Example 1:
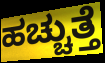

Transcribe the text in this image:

ಹಚ್ಚುತ್ತೆ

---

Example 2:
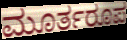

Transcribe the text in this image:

ಮೂರ್ತರೂಪ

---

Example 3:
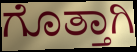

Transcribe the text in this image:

ಗೊತ್ತಾಗಿ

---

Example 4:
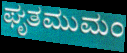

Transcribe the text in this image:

ಘೃತಮುಮಂ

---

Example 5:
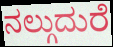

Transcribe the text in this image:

ನಲ್ಗುದುರೆ